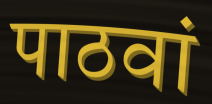
पाठवां